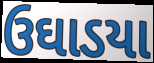
ઉઘાડયા